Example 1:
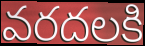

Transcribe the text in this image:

వరదలకి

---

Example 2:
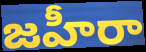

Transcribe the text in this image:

జహీరా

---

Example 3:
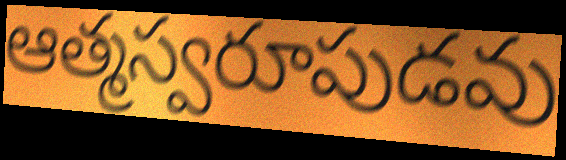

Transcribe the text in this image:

ఆత్మస్వరూపుడవు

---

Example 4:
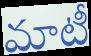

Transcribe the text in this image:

మాటీ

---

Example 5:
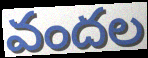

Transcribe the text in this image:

వందల